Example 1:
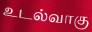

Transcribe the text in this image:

உடல்வாகு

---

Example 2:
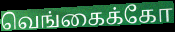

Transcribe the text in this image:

வெங்கைக்கோ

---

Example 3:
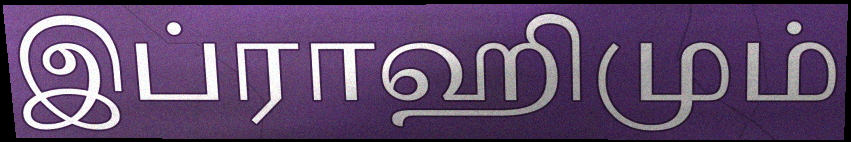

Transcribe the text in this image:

இப்ராஹிமும்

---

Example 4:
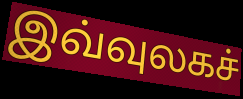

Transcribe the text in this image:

இவ்வுலகச்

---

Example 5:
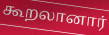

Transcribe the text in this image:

கூறலானார்